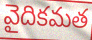
వైదికమత